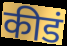
कीडं